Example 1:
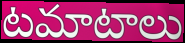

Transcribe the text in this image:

టమాటాలు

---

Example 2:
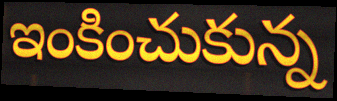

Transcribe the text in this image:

ఇంకించుకున్న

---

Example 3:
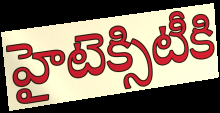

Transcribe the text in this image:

హైటెక్సిటీకి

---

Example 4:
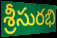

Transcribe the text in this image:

శ్రీసురభి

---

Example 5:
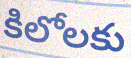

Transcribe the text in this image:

కిలోలకు